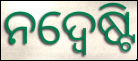
ନଦ୍ୱେଷ୍ଟି